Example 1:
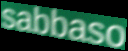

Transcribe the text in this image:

sabbaso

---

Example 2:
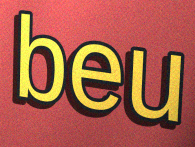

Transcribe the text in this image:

beu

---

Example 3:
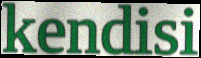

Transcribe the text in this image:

kendisi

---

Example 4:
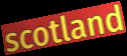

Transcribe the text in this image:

scotland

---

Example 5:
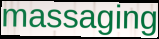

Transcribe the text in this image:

massaging